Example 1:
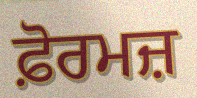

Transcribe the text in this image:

ਫ਼ੋਰਮਜ਼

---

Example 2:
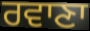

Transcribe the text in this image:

ਰਵਾਣਾ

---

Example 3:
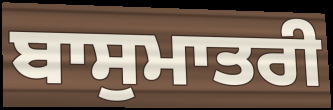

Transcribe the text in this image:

ਬਾਸੁਮਾਤਰੀ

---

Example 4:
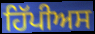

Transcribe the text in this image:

ਹਿੱਪੀਅਸ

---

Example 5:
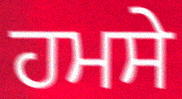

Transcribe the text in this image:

ਹਮਸੇ